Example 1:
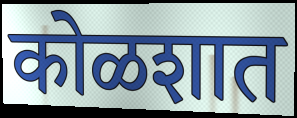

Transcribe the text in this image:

कोळशात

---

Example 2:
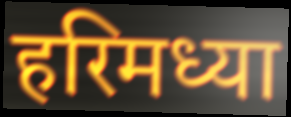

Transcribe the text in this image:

हरिमध्या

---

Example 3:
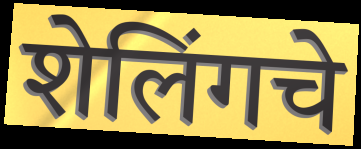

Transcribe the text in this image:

शेलिंगचे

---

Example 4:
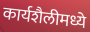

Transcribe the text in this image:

कार्यशैलीमध्ये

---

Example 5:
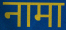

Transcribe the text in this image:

नामा